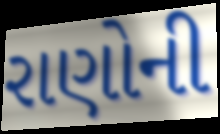
રાણોની